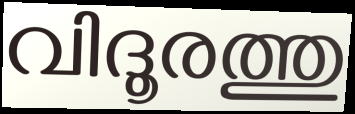
വിദൂരത്തു